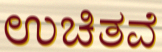
ಉಚಿತವೆ